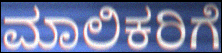
ಮಾಲಿಕರಿಗೆ